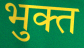
भुक्त